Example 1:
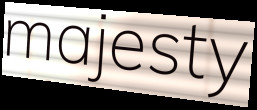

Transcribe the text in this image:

majesty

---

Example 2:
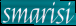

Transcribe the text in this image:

smarisi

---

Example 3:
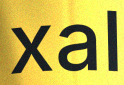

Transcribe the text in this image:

xal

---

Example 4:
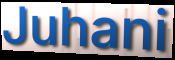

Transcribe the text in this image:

Juhani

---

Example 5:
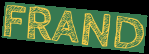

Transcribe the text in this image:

FRAND